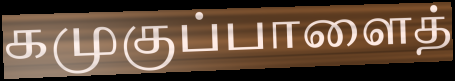
கமுகுப்பாளைத்